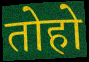
तोहो